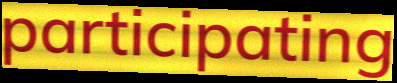
participating